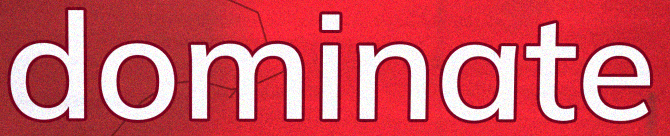
dominate